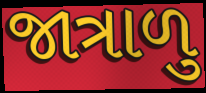
જાત્રાળુ